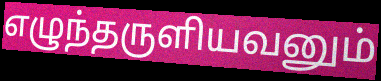
எழுந்தருளியவனும்